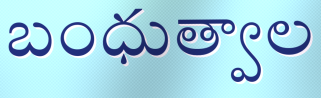
బంధుత్వాల